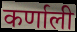
कर्णाली